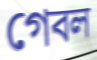
গেবল